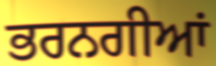
ਭਰਨਗੀਆਂ